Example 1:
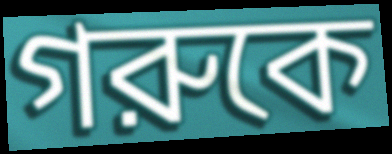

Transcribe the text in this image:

গরুকে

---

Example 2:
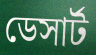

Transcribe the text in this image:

ডেসার্ট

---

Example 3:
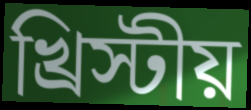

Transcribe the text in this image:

খ্রিস্টীয়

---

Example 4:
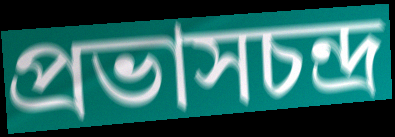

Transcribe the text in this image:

প্রভাসচন্দ্র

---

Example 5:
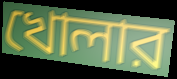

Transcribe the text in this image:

খোলার